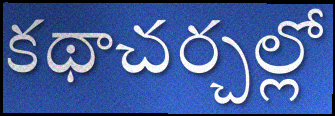
కథాచర్చల్లో